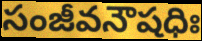
సంజీవనౌషధిః